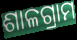
ଶାଳଗ୍ରାମ